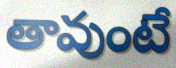
తావుంటే